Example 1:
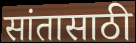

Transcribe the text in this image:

सांतासाठी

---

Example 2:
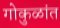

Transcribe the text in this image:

गोकुळांत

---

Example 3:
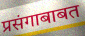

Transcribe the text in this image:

प्रसंगाबाबत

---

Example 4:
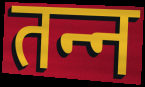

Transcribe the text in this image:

तन्न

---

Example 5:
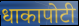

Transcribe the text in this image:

धाकापोटी